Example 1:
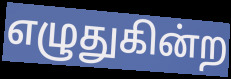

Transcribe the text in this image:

எழுதுகின்ற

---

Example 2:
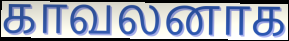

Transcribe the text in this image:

காவலனாக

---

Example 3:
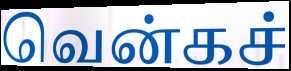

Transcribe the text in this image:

வென்கச்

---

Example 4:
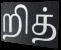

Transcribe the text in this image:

றித்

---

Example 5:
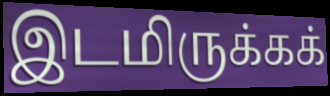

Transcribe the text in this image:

இடமிருக்கக்